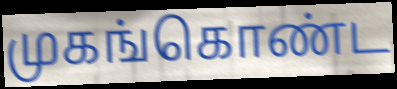
முகங்கொண்ட